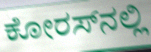
ಕೋರಸ್‌ನಲ್ಲಿ